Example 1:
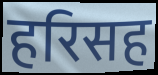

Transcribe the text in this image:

हरिसह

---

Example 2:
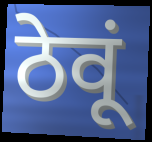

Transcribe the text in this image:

ठेवूं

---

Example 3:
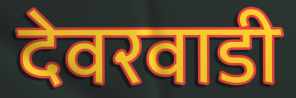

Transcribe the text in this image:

देवरवाडी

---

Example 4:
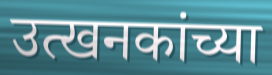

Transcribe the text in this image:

उत्खनकांच्या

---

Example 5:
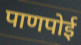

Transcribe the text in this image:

पाणपोई